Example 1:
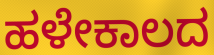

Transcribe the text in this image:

ಹಳೇಕಾಲದ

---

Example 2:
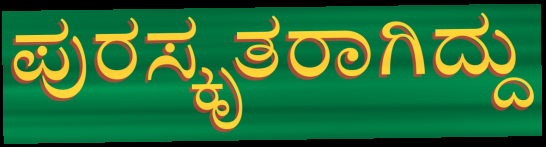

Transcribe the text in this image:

ಪುರಸ್ಕೃತರಾಗಿದ್ದು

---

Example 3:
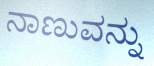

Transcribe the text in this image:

ನಾಣುವನ್ನು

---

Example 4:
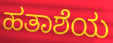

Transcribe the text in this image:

ಹತಾಶೆಯ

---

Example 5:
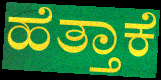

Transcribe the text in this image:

ಹೆತ್ತಾಕೆ